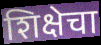
शिक्षेचा